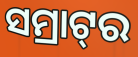
ସମ୍ରାଟ୍‌ର